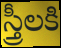
స్త్రీలకి